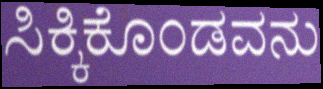
ಸಿಕ್ಕಿಕೊಂಡವನು